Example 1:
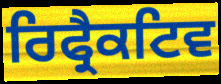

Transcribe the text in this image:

ਰਿਫ੍ਰੈਕਟਿਵ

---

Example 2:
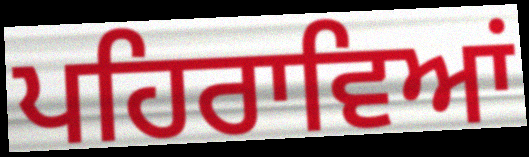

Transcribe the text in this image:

ਪਹਿਰਾਵਿਆਂ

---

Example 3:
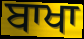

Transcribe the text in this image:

ਬਾਖਾ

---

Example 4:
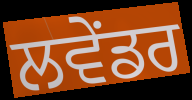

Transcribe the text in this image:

ਲਵੇਂਡਰ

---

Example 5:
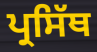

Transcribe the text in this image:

ਪ੍ਰਸਿੱਥ